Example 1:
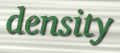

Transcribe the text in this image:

density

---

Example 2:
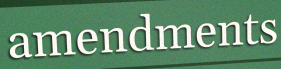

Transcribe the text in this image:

amendments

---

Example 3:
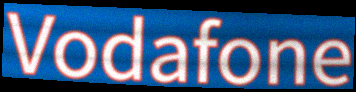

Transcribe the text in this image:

Vodafone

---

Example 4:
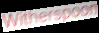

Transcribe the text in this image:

Witherspoon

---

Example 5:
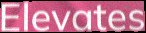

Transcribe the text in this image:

Elevates